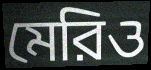
মেরিও